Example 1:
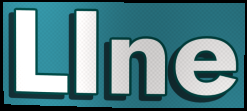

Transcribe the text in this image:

LIne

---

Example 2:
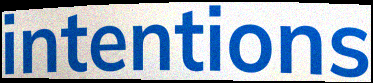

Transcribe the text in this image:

intentions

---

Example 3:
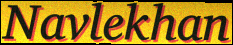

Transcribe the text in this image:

Navlekhan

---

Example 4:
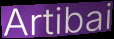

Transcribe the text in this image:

Artibai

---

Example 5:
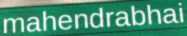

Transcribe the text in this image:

mahendrabhai